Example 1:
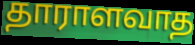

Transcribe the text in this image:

தாராளவாத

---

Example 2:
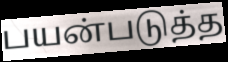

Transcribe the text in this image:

பயன்படுத்த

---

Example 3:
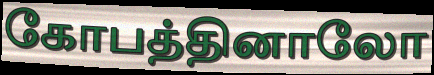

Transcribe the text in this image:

கோபத்தினாலோ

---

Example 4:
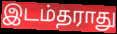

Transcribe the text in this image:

இடம்தராது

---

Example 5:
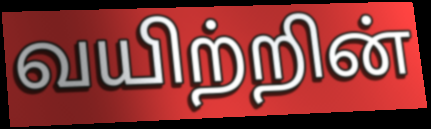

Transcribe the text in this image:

வயிற்றின்